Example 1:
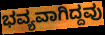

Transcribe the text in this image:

ಭವ್ಯವಾಗಿದ್ದವು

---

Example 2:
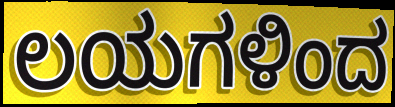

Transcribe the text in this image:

ಲಯಗಳಿಂದ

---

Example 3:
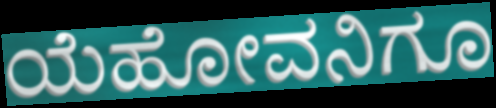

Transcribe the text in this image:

ಯೆಹೋವನಿಗೂ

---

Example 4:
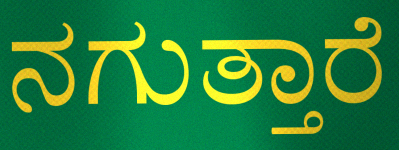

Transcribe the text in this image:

ನಗುತ್ತಾರೆ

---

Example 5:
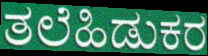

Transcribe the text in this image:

ತಲೆಹಿಡುಕರ